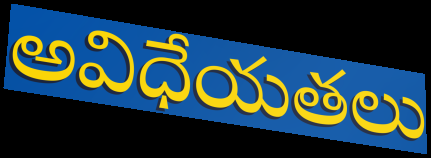
అవిధేయతలు